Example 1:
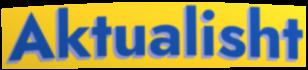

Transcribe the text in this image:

Aktualisht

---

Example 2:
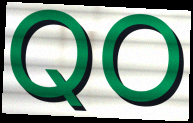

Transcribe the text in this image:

QO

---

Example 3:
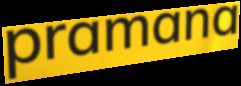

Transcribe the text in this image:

pramana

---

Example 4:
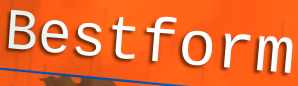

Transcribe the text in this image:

Bestform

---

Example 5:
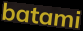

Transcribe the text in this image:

batami